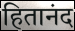
हितानंद